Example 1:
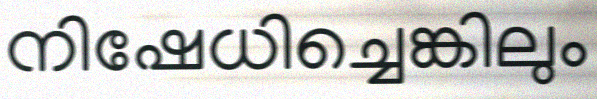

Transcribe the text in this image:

നിഷേധിച്ചെങ്കിലും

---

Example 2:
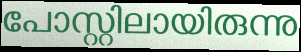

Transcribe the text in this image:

പോസ്റ്റിലായിരുന്നു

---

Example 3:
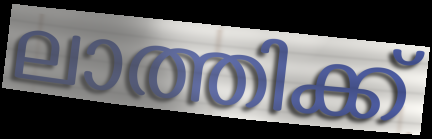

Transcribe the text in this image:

ലാത്തിക്ക്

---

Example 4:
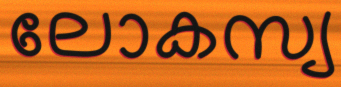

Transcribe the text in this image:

ലോകസ്യ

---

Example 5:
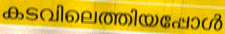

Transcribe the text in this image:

കടവിലെത്തിയപ്പോൾ